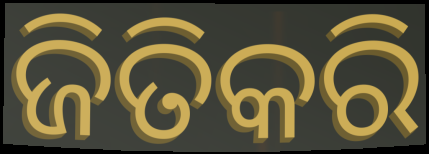
ଜିତିକରି